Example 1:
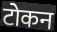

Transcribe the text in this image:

टोकन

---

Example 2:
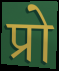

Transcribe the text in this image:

प्रो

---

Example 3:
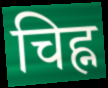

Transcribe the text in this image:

चिह्न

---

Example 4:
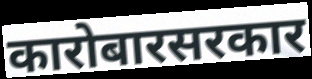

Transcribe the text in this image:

कारोबारसरकार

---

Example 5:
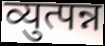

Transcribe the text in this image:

व्युत्पन्न